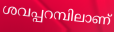
ശവപ്പറമ്പിലാണ്